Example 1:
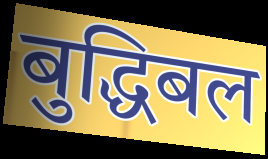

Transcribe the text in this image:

बुद्धिबल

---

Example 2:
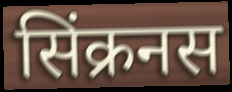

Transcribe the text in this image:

सिंक्रनस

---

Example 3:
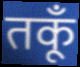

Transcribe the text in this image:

तकूँ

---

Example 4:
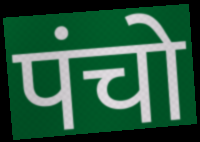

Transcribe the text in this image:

पंचो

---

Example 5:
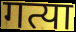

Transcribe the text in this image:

गत्या